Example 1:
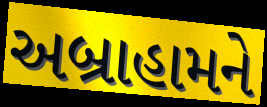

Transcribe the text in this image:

અબ્રાહામને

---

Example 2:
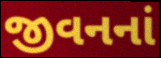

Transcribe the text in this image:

જીવનનાં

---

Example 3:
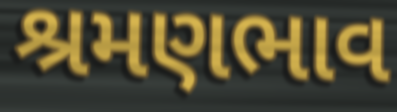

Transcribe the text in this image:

શ્રમણભાવ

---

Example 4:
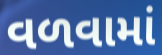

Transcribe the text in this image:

વળવામાં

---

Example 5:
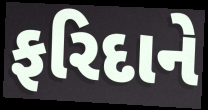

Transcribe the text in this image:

ફરિદાને